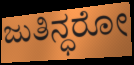
ಜುತಿನ್ಧರೋ